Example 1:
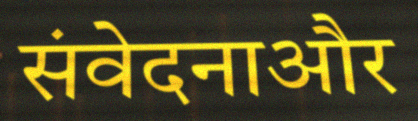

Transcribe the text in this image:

संवेदनाऔर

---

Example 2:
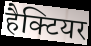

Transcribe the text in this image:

हैक्टियर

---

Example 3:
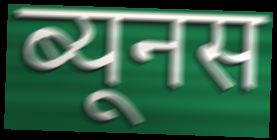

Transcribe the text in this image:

ब्यूनस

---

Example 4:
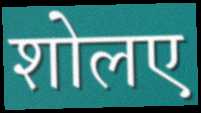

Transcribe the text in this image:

शोलए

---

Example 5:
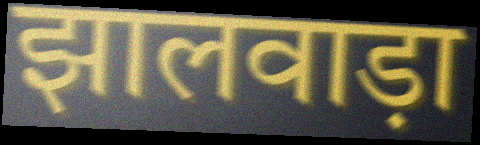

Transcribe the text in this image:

झालवाड़ा